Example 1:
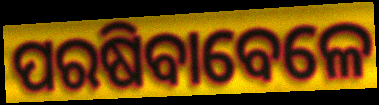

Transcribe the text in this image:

ପରଷିବାବେଳେ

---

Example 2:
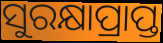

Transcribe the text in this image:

ସୁରକ୍ଷାପ୍ରାପ୍ତ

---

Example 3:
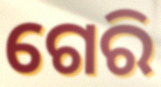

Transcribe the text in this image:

ଗେରି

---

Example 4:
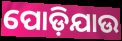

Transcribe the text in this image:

ପୋଡ଼ିଯାଉ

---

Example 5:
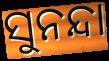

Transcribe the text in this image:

ସୁନନ୍ଦା